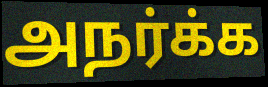
அநர்க்க